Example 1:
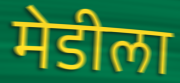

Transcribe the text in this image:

मेडीला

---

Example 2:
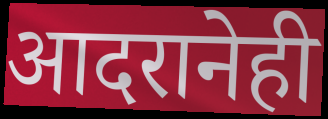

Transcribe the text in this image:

आदरानेही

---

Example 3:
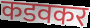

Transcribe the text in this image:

कडवकर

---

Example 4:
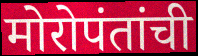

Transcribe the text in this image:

मोरोपंतांची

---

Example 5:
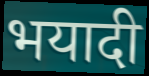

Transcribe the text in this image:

भयादी